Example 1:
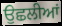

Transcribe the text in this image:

ਉਛਲੀਆਂ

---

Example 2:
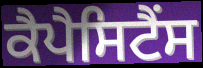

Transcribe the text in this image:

ਕੈਪੈਸਿਟੈਂਸ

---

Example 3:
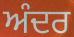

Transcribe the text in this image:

ਅੰਦਰ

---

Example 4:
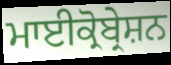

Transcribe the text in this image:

ਮਾਈਕ੍ਰੋਬ੍ਰੇਸ਼ਨ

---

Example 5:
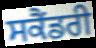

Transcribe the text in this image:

ਸਕੈੰਡਰੀ